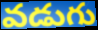
వడుగు